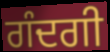
ਗੰਦਗੀ